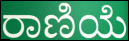
ರಾಣಿಯೆ